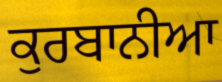
ਕੁਰਬਾਨੀਆ